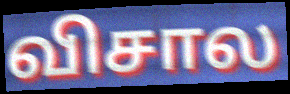
விசால